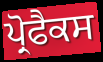
ਪ੍ਰੋਫੈਕਸ